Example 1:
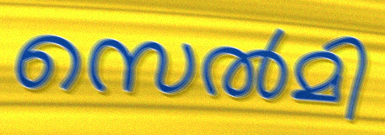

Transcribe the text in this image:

സെൽമി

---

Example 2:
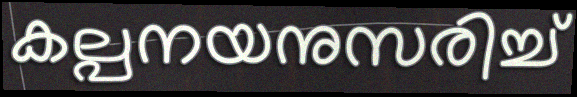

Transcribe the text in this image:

കല്പനയനുസരിച്ച്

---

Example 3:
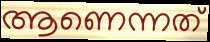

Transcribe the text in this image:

ആണെന്നത്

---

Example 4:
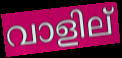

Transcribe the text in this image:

വാളില്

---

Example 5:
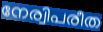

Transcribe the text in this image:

നേര്വിപരീത